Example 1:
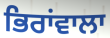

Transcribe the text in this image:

ਭਿਰਾਂਵਾਲਾ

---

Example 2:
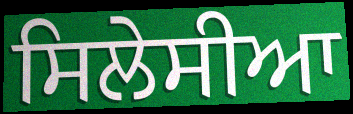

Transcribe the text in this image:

ਸਿਲੇਸੀਆ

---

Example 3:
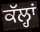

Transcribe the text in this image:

ਕੱਲ੍ਹਾਂ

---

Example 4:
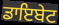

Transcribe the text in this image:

ਡਾਇਬੇਟ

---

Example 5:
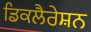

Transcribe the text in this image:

ਡਿਕਲੈਰੇਸ਼ਨ